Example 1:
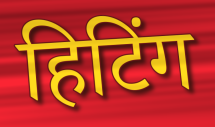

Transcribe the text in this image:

हिटिंग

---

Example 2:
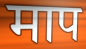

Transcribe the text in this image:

माप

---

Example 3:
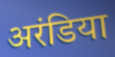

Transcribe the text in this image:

अरंडिया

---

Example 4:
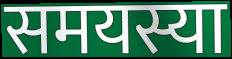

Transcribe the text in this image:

समयस्या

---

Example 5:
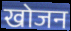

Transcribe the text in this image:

खोजन